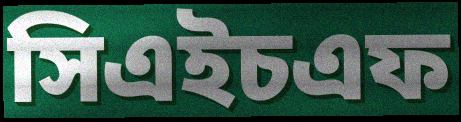
সিএইচএফ